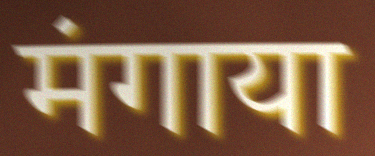
मंगाया